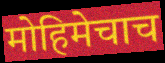
मोहिमेचाच